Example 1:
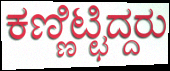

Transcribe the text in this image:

ಕಣ್ಣಿಟ್ಟಿದ್ದರು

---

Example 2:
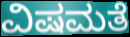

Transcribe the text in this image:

ವಿಷಮತೆ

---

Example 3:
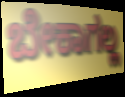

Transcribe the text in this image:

ಬೇಕಾಗಲ್ಲ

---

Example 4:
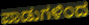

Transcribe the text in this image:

ಪಾಡುಗಳಿಂದ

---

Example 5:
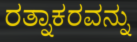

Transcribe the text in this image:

ರತ್ನಾಕರವನ್ನು